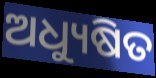
ଅଧ୍ୟୁଷିତ